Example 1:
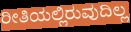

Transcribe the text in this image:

ರೀತಿಯಲ್ಲಿರುವುದಿಲ್ಲ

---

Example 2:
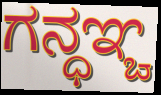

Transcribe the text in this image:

ಗನ್ಧಞ್ಚ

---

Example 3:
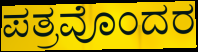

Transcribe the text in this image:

ಪತ್ರವೊಂದರ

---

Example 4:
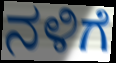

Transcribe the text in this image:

ನಳಿಗೆ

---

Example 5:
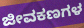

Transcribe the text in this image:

ಜೀವಕಣಗಳ